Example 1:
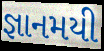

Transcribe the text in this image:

જ્ઞાનમયી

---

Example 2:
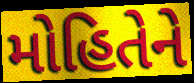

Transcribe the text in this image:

મોહિતેને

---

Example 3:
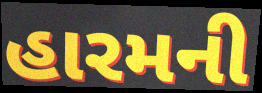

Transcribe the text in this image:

હારમની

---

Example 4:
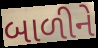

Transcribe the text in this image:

બાળીને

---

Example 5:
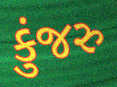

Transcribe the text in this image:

કુંજરુ